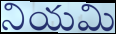
నియమి